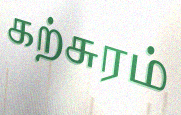
கற்சுரம்